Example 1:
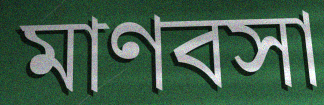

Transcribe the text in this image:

মাণবসা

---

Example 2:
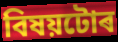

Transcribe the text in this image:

বিষয়টোৰ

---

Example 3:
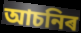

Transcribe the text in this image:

আচনিৰ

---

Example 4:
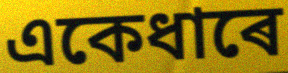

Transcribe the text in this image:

একেধাৰে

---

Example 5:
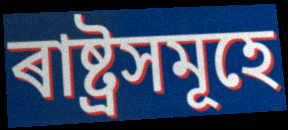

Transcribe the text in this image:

ৰাষ্ট্ৰসমূহে